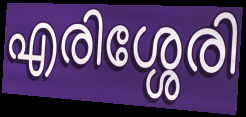
എരിശ്ശേരി